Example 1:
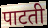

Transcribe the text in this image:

पाटती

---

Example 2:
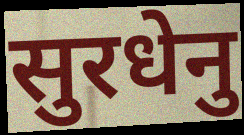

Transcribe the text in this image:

सुरधेनु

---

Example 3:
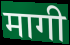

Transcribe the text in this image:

मागी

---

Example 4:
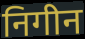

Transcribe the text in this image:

निगीन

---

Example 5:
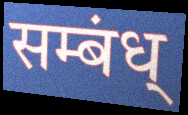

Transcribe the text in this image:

सम्बंध्